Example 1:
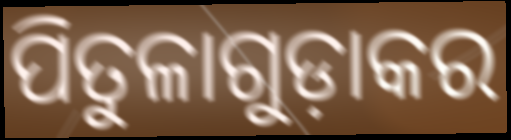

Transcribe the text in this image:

ପିତୁଳାଗୁଡ଼ାକର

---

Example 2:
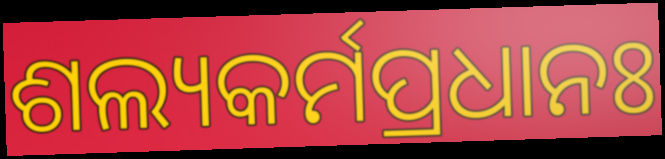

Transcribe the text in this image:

ଶଲ୍ୟକର୍ମପ୍ରଧାନଃ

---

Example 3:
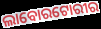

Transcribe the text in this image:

ଲାବୋରଟୋରୀର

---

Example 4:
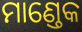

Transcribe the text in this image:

ମାଣ୍ଡେକ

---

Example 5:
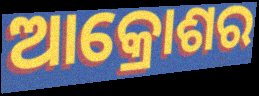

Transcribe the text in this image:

ଆକ୍ରୋଶର